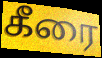
கீரை